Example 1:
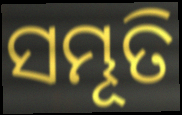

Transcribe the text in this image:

ସମ୍ଭୂତି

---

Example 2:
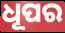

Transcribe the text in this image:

ଧୂପର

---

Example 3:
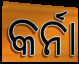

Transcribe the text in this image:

କର୍ନା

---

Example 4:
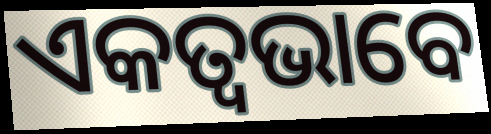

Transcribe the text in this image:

ଏକତ୍ଵଭାବେ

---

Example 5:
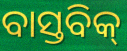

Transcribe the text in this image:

ବାସ୍ତବିକ୍